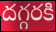
దగ్గరకి